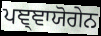
ਪਞ੍ਞਾਯੋਗੇਨ